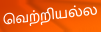
வெற்றியல்ல